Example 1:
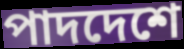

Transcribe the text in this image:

পাদদেশে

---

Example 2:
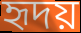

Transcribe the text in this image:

হৃদয়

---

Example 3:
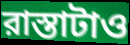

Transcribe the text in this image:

রাস্তাটাও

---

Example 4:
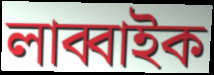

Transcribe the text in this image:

লাব্বাইক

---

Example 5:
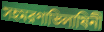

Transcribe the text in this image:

সহমরণাভিলাষিনী